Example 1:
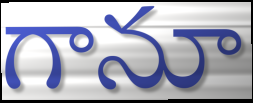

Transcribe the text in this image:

గానూ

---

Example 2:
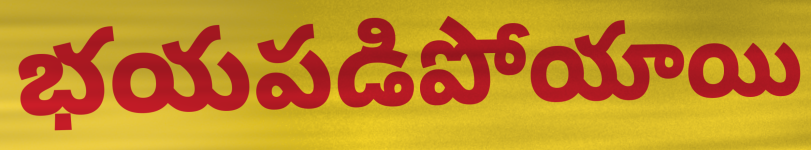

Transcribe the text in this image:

భయపడిపోయాయి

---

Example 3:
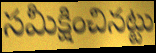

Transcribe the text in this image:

సమీక్షించినట్టు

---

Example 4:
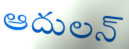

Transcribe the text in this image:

ఆదులన్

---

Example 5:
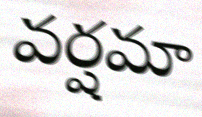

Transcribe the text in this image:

వర్షమా